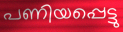
പണിയപ്പെട്ടു